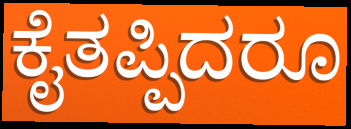
ಕೈತಪ್ಪಿದರೂ